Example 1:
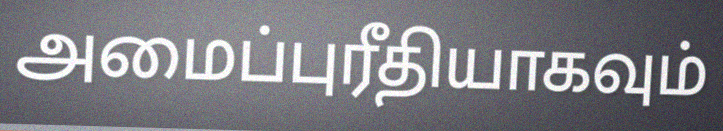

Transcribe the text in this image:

அமைப்புரீதியாகவும்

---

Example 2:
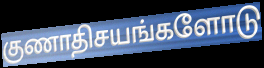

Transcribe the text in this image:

குணாதிசயங்களோடு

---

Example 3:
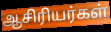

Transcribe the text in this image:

ஆசிரியர்கள்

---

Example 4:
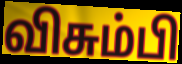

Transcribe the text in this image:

விசும்பி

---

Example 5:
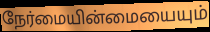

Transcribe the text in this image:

நேர்மையின்மையையும்